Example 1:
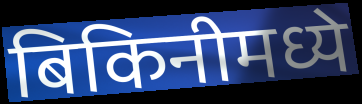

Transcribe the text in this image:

बिकिनीमध्ये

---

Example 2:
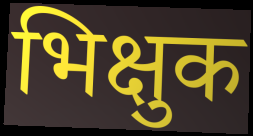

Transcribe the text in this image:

भिक्षुक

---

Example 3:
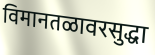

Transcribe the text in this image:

विमानतळावरसुद्धा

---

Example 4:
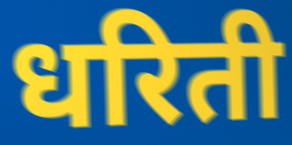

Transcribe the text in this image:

धरिती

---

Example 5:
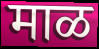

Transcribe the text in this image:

माळ